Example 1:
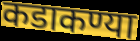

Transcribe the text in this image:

कडाकण्या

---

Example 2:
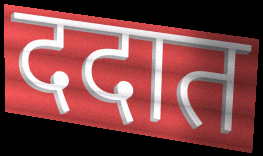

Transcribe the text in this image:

ददात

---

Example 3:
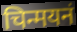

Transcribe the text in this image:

चिन्मयनं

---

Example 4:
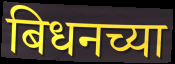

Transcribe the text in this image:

बिधनच्या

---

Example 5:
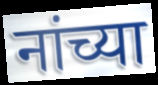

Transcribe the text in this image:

नांच्या